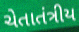
ચેતાતંત્રીય